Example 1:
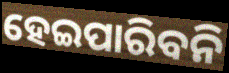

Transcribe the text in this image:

ହେଇପାରିବନି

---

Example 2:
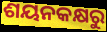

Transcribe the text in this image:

ଶୟନକକ୍ଷରୁ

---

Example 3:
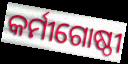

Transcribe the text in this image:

କର୍ମୀଗୋଷ୍ଠୀ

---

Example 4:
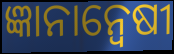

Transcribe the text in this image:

ଜ୍ଞାନାନ୍ୱେଷୀ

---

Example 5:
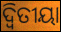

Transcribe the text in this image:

ଦ୍ଵିତୀୟା